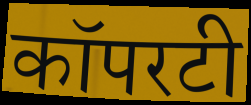
कॉपरटी